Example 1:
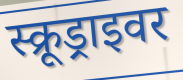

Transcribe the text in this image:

स्क्रूड्राइवर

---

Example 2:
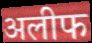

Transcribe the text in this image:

अलीफ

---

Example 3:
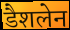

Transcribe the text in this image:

डैशलेन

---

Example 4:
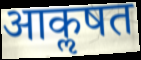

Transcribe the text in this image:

आकॢषत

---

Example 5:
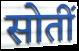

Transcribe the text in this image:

सोतीं